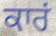
ਕਾਰਂ